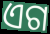
ଏଗ